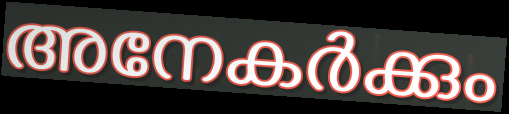
അനേകർക്കും